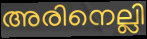
അരിനെല്ലി